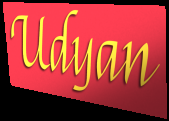
Udyan